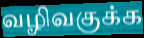
வழிவகுக்க